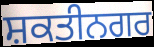
ਸ਼ਕਤੀਨਗਰ